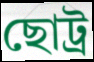
ছোট্র